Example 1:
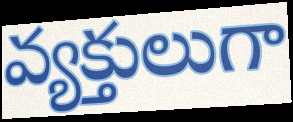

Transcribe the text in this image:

వ్యక్తులుగా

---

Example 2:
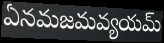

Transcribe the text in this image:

ఏనమజమవ్యయమ్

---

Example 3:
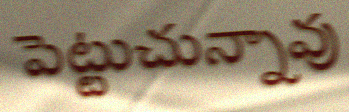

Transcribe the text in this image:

పెట్టుచున్నావు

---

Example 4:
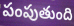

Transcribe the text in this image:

పంపుతుంది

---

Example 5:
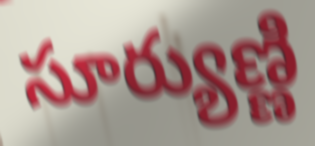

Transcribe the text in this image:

సూర్యుణ్ణి